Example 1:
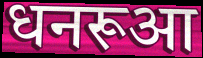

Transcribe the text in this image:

धनरूआ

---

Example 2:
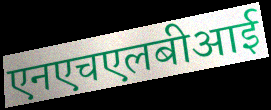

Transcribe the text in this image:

एनएचएलबीआई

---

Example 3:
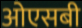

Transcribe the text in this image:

ओएसबी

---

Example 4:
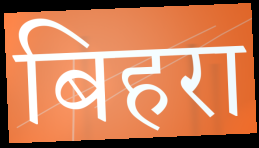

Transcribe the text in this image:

बिहरा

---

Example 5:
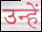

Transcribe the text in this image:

उन्‍हें